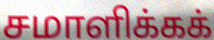
சமாளிக்கக்